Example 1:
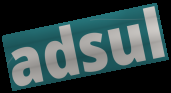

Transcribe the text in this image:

adsul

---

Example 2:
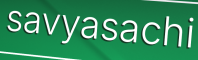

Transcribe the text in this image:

savyasachi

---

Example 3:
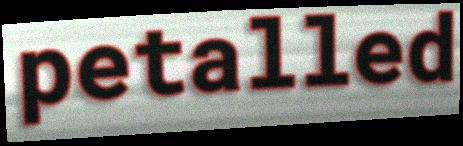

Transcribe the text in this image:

petalled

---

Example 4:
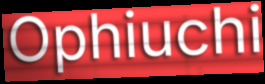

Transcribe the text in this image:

Ophiuchi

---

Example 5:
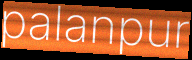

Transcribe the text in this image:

palanpur